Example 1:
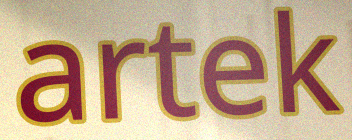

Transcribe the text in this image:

artek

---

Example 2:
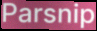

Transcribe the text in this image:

Parsnip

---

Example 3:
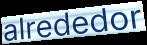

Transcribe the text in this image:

alrededor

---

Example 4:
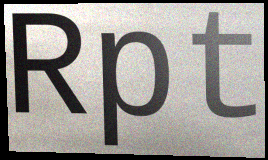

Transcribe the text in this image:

Rpt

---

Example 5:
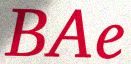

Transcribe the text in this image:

BAe